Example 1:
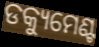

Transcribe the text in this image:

ଡକ୍ୟୁମେଣ୍ଟ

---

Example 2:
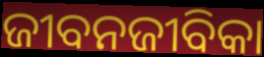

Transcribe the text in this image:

ଜୀବନଜୀବିକା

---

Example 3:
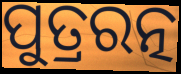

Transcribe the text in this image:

ପୁତ୍ରରତ୍ନ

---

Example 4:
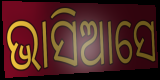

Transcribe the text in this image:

ଭାସିଆସେ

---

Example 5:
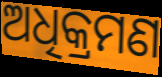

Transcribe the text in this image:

ଅଧିକ୍ରମଣ